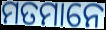
ମତମାନେ